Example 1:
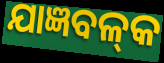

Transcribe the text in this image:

ଯାଜ୍ଞବଳ୍‌କ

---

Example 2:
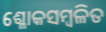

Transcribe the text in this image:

ଶ୍ଳୋକସମ୍ବଳିତ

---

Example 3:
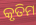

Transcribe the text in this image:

କୃତିମ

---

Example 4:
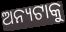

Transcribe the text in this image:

ଅନ୍ୟଟାକୁ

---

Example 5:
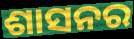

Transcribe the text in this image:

ଶାସନର